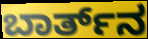
ಬಾರ್ತ್‌ನ